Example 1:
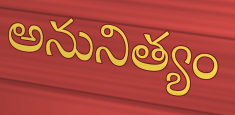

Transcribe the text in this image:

అనునిత్యం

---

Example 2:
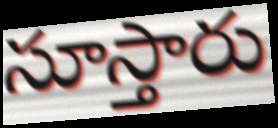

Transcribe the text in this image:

సూస్తారు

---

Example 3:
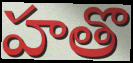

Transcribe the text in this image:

హతొ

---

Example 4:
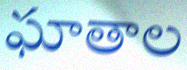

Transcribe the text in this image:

ఘాతాల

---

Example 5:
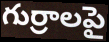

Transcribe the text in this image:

గుర్రాలపై